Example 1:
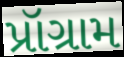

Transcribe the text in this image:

પ્રૉગ્રામ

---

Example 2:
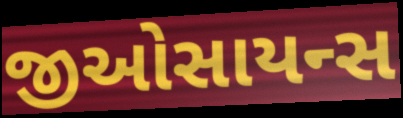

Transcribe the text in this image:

જીઓસાયન્સ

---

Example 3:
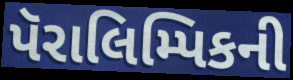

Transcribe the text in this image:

પૅરાલિમ્પિકની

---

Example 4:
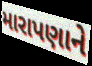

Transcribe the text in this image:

મારાપણાને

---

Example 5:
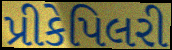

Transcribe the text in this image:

પ્રીકેપિલરી